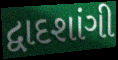
દ્વાદશાંગી